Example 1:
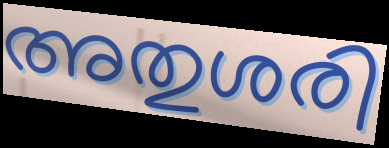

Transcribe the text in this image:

അതുശരി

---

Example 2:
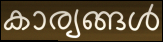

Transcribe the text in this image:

കാര്യങ്ങൾ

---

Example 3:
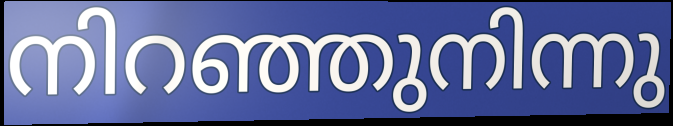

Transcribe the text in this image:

നിറഞ്ഞുനിന്നു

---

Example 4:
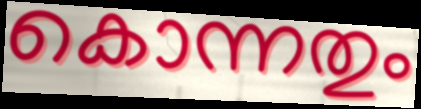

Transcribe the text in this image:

കൊന്നതും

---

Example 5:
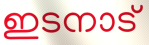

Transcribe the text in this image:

ഇടനാട്